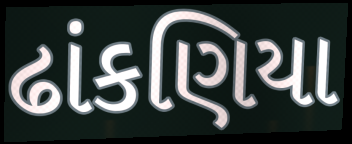
ઢાંકણિયા